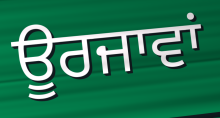
ਊਰਜਾਵਾਂ